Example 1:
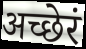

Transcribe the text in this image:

अच्छेरं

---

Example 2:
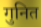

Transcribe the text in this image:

गुनित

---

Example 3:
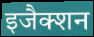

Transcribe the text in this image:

इजैक्शन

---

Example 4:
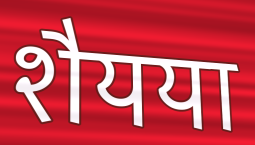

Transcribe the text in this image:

शैयया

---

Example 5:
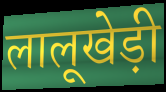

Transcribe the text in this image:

लालूखेड़ी